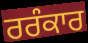
ਰਰੰਕਾਰ